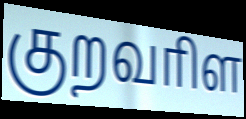
குறவரிள